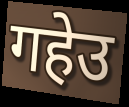
गहेउ